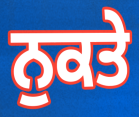
ਨੁਕਤੇ